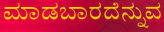
ಮಾಡಬಾರದೆನ್ನುವ